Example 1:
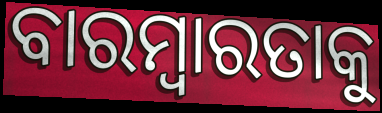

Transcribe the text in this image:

ବାରମ୍ବାରତାକୁ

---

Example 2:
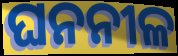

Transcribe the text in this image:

ଘନନୀଳ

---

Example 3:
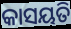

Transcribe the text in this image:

କାସୟତି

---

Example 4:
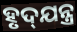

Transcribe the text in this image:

ହୃଦ୍‌ଯନ୍ତ୍ର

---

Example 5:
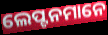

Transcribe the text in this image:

ଲେପ୍ଟନମାନେ